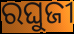
ରଘୁଜୀ